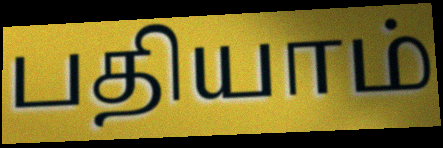
பதியாம்